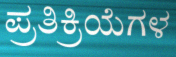
ಪ್ರತಿಕ್ರಿಯೆಗಳ